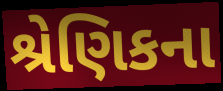
શ્રેણિકના